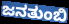
ಜನತುಂಬಿ